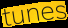
tunes